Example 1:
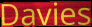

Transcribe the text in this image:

Davies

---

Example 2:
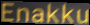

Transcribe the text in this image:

Enakku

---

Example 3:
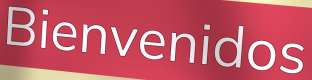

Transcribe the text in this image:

Bienvenidos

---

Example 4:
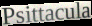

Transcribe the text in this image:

Psittacula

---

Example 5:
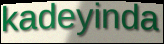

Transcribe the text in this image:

kadeyinda